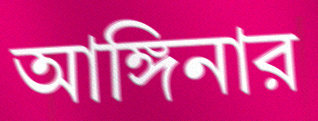
আঙ্গিনার